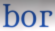
bor